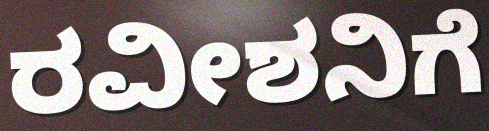
ರವೀಶನಿಗೆ